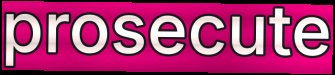
prosecute